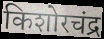
किशोरचंद्र